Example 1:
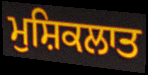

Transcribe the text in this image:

ਮੁਸ਼ਿਕਲਾਤ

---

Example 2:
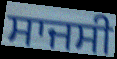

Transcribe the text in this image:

ਸਾਜਸੀ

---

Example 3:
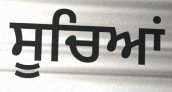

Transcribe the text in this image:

ਸੂਚਿਆਂ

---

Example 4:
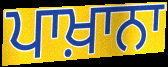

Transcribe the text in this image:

ਪਾਖ਼ਾਨਾ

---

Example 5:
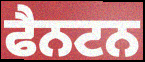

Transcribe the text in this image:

ਫੈਨਟਨ